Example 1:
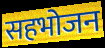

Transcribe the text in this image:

सहभोजन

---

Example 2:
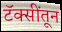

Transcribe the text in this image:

टॅक्सींतून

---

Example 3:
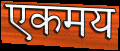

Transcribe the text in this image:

एकमय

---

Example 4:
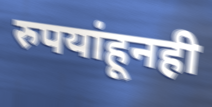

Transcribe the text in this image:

रुपयांहूनही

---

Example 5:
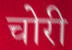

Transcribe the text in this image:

चोरी